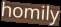
homily